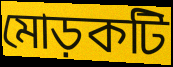
মোড়কটি